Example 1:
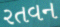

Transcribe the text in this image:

રતવન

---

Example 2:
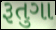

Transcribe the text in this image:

રૂતુગા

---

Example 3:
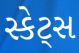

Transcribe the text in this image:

સ્કેટ્સ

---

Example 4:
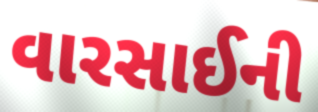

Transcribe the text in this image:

વારસાઈની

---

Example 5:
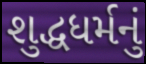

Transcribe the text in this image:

શુદ્ધધર્મનું